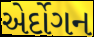
એર્દોગન